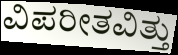
ವಿಪರೀತವಿತ್ತು